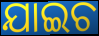
ଯାଇଚ